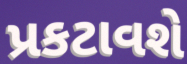
પ્રકટાવશે